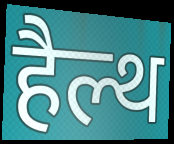
हैल्थ